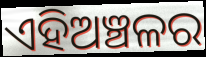
ଏହିଅଞ୍ଚଳର